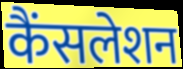
कैंसलेशन